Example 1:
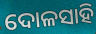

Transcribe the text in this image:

ଦୋଳସାହି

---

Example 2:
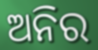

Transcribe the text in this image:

ଅନିର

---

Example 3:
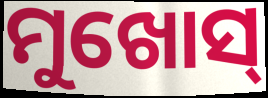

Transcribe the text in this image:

ମୁଖୋସ୍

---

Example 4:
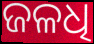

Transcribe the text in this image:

ଜଳଧି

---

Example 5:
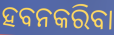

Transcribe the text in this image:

ହବନକରିବା